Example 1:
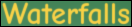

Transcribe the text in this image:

Waterfalls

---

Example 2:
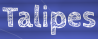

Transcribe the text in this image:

Talipes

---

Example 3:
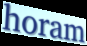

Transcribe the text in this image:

horam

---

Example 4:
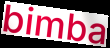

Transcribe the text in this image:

bimba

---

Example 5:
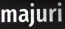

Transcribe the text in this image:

majuri